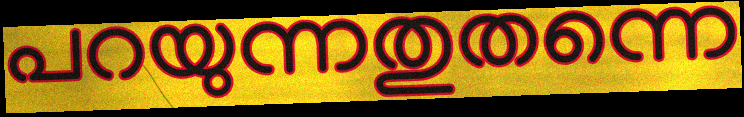
പറയുന്നതുതന്നെ